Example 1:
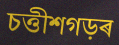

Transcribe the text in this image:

চত্তীশগড়ৰ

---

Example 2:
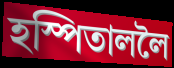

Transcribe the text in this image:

হস্পিতাললৈ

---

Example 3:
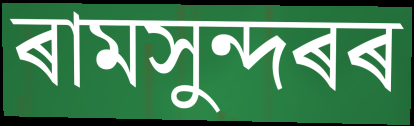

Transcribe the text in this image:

ৰামসুন্দৰৰ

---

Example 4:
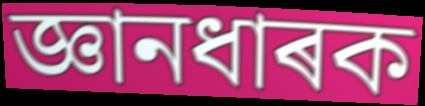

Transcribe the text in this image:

জ্ঞানধাৰক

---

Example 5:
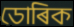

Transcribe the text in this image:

ডোৰিক